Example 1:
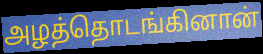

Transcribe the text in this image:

அழத்தொடங்கினான்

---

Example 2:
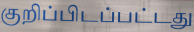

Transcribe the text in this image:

குறிப்பிடப்பட்டது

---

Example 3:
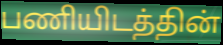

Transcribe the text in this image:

பணியிடத்தின்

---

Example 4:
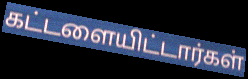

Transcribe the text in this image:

கட்டளையிட்டார்கள்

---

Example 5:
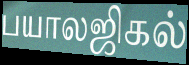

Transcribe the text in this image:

பயாலஜிகல்